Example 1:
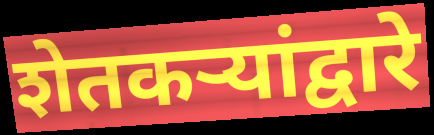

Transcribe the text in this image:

शेतकऱ्यांद्वारे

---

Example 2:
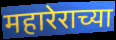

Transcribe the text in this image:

महारेराच्या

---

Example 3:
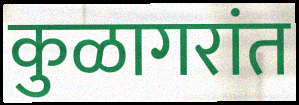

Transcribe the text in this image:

कुळागरांत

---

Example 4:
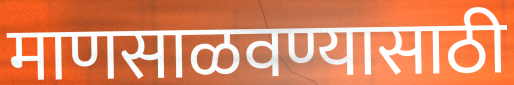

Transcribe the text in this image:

माणसाळवण्यासाठी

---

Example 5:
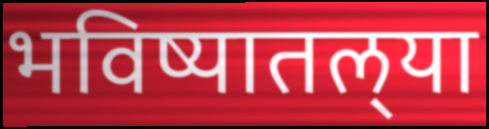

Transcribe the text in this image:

भविष्यातल्या